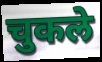
चुकले